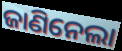
ଜାଣିନେଲା